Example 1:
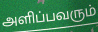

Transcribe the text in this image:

அளிப்பவரும்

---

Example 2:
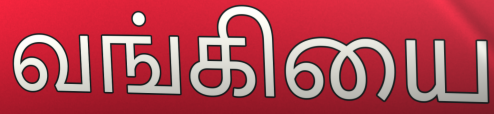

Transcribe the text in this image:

வங்கியை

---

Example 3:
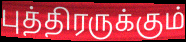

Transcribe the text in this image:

புத்திரருக்கும்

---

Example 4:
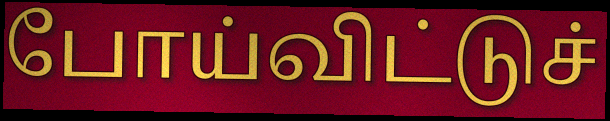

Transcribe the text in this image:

போய்விட்டுச்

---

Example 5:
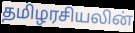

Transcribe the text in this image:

தமிழரசியலின்